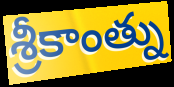
శ్రీకాంత్ను